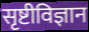
सृष्टीविज्ञान